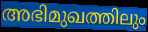
അഭിമുഖത്തിലും